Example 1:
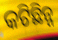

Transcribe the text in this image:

କଟିଛିନ୍ନ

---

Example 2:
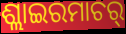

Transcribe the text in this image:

ଶ୍ଲାଇରମାଚର୍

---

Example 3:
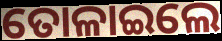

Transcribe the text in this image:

ତୋଳାଇଲେ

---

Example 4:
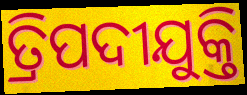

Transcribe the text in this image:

ତ୍ରିପଦୀଯୁକ୍ତି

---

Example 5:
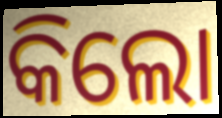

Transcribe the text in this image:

କିଲୋ